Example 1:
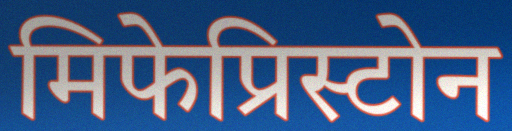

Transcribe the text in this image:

मिफेप्रिस्टोन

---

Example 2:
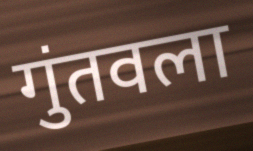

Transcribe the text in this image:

गुंतवला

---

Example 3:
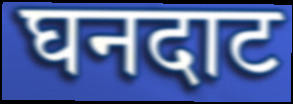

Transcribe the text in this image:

घनदाट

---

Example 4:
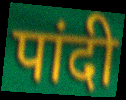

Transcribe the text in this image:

पांदी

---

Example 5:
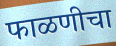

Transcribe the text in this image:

फाळणीचा